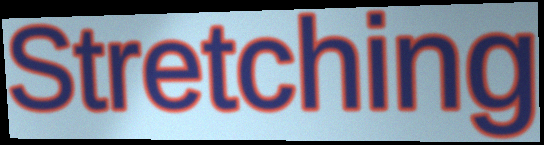
Stretching